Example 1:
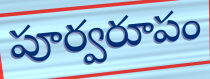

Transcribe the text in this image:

పూర్వరూపం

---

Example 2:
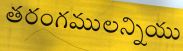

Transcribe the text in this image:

తరంగములన్నియు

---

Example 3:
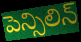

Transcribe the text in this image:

పెన్సిలిన్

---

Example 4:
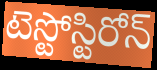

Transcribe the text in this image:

టెస్టోస్టిరోన్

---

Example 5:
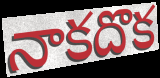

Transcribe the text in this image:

నాకదొక